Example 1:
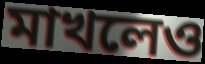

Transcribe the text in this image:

মাখলেও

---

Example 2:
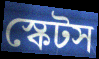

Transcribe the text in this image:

স্কেটস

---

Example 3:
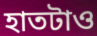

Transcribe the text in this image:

হাতটাও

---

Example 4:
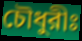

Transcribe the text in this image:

চৌধুরীঃ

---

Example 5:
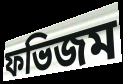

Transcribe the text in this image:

ফভিজম